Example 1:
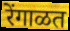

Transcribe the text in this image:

रेंगाळत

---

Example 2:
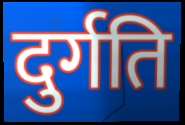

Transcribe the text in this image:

दुर्गति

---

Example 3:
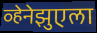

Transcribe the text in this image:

व्हेनेझुएला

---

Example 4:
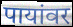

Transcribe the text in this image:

पायांवर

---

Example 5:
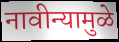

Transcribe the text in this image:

नावीन्यामुळे